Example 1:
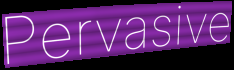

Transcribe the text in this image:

Pervasive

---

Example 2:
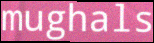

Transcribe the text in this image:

mughals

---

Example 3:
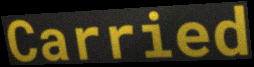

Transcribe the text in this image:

Carried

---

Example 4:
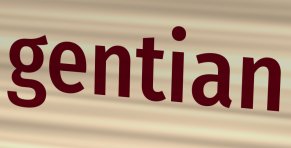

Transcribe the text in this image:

gentian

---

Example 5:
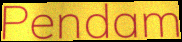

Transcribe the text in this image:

Pendam